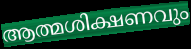
ആത്മശിക്ഷണവും